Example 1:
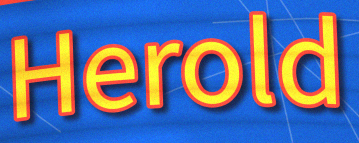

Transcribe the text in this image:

Herold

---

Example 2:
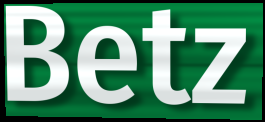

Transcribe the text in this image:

Betz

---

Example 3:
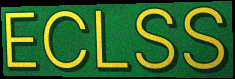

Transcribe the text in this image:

ECLSS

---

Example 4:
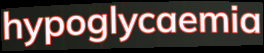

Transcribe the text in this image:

hypoglycaemia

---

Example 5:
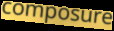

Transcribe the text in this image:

composure